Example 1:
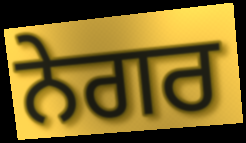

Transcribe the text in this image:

ਨੇਗਰ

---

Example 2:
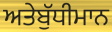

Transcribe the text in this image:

ਅਤੇਬੁੱਧੀਮਾਨ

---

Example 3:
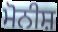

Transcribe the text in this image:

ਮੋਨੀਸ਼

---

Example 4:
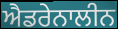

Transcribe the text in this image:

ਐਡਰੇਨਾਲੀਨ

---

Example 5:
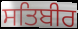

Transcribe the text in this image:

ਸਤਿਬੀਰ